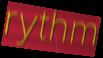
rythm